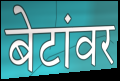
बेटांवर